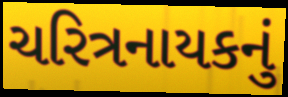
ચરિત્રનાયકનું